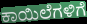
ಕಾಯಿಲೆಗಳಿಗೆ